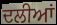
ਦਲੀਆਂ